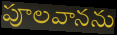
పూలవానను